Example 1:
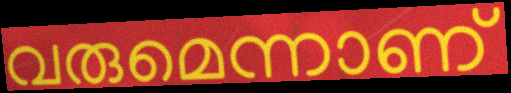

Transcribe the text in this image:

വരുമെന്നാണ്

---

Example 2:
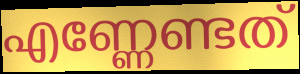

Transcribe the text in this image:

എണ്ണേണ്ടത്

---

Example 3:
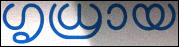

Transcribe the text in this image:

ഗൃധ്രായ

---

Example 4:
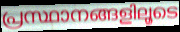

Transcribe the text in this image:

പ്രസ്ഥാനങ്ങളിലൂടെ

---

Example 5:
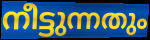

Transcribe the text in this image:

നീട്ടുന്നതും